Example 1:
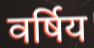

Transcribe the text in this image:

वर्षिय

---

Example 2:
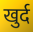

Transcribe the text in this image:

खुर्द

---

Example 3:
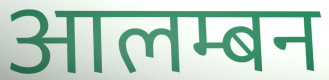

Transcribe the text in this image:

आलम्बन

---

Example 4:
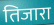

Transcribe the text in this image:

तिजारा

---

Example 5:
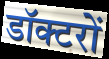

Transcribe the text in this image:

डॉक्टरों